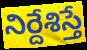
నిర్దేశిస్తే